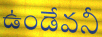
ఉండేవనీ